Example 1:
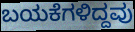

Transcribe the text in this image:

ಬಯಕೆಗಳಿದ್ದವು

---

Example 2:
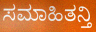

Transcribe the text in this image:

ಸಮಾಹಿತನ್ತಿ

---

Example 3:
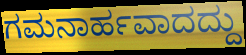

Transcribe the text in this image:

ಗಮನಾರ್ಹವಾದದ್ದು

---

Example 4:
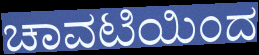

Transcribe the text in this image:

ಚಾವಟಿಯಿಂದ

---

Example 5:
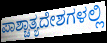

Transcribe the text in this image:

ಪಾಶ್ಚಾತ್ಯದೇಶಗಳಲ್ಲಿ